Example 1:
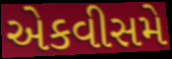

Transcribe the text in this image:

એકવીસમે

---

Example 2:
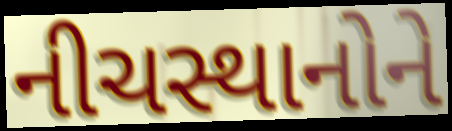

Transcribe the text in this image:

નીચસ્થાનોને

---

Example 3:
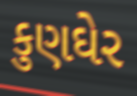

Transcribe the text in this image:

કુણઘેર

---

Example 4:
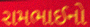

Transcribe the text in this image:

રામભાઈનો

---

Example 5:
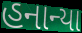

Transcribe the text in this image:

હનાન્યા